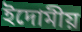
ইদোমীয়